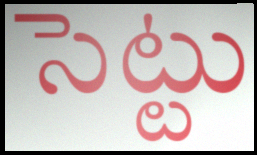
సెట్టు